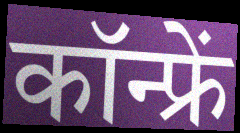
कॉन्फ्रें